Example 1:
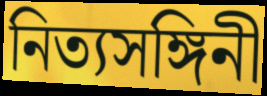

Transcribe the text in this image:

নিত্যসঙ্গিনী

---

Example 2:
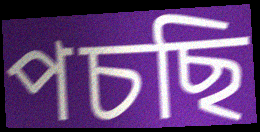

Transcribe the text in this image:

পচছি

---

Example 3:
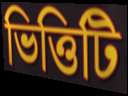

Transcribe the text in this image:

ভিত্তিটি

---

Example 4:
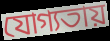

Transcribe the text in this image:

যোগ্যতায়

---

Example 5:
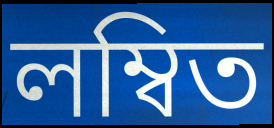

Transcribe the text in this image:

লম্বিত